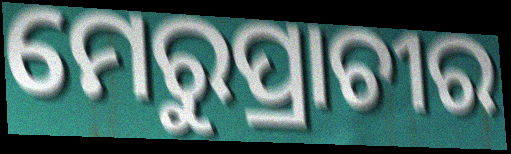
ମେରୁପ୍ରାଚୀର